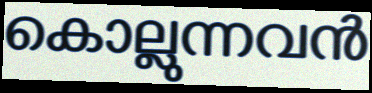
കൊല്ലുന്നവൻ